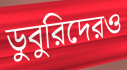
ডুবুরিদেরও